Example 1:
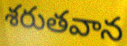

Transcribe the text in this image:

శరుతవాన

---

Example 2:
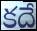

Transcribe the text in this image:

కదే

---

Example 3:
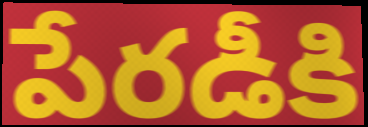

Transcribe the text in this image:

పేరడీకి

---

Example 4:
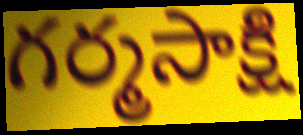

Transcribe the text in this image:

గర్మసాక్షి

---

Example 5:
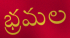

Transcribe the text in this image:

భ్రమల